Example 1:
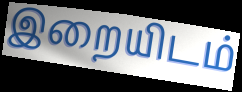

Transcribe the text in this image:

இறையிடம்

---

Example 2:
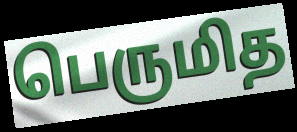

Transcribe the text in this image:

பெருமித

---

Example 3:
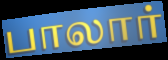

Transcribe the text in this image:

பாலார்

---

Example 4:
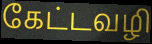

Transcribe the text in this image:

கேட்டவழி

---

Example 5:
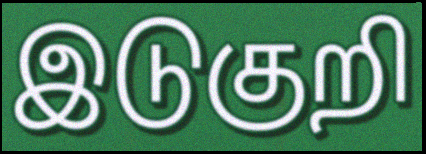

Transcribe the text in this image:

இடுகுறி